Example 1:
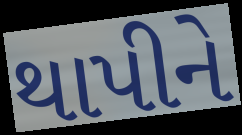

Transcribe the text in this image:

થાપીને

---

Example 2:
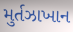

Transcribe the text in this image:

મુર્તઝાખાન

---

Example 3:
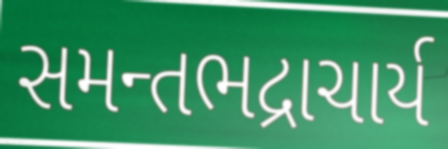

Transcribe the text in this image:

સમન્તભદ્રાચાર્ય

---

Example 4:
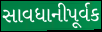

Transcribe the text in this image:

સાવધાનીપૂર્વક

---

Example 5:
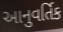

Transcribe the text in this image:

આનુવર્તિક